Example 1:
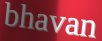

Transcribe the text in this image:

bhavan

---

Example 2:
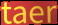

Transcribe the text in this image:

taer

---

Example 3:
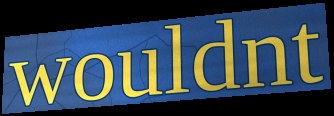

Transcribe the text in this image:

wouldnt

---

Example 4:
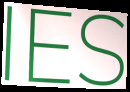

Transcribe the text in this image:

IES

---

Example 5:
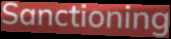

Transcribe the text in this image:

Sanctioning